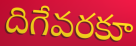
దిగేవరకూ